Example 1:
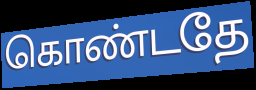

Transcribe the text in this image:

கொண்டதே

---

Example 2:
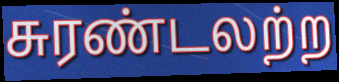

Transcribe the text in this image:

சுரண்டலற்ற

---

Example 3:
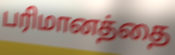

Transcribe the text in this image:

பரிமானத்தை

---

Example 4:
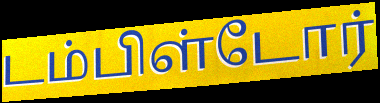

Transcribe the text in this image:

டம்பிள்டோர்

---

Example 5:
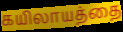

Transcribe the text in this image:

கயிலாயத்தை